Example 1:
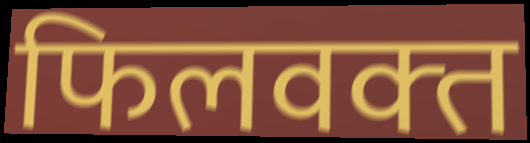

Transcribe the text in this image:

फिलवक्‍त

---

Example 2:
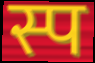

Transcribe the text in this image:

स्प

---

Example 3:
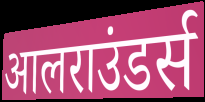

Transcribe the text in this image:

आलराउंडर्स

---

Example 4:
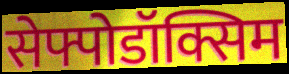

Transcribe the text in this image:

सेफ्पोडॉक्सिम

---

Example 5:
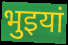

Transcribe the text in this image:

भुइयां